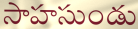
సాహసుండు